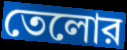
তেলোর